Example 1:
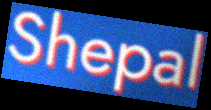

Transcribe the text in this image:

Shepal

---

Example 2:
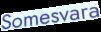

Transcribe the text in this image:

Somesvara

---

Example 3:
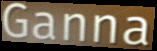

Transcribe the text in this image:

Ganna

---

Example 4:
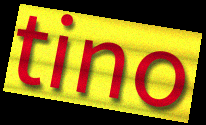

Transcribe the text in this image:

tino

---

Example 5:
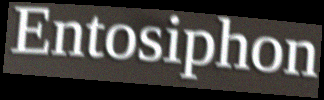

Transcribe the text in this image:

Entosiphon